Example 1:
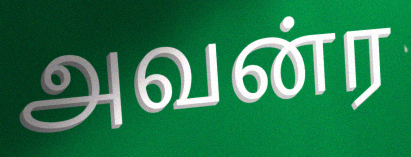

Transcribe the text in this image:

அவன்ர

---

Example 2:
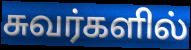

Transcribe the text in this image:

சுவர்களில்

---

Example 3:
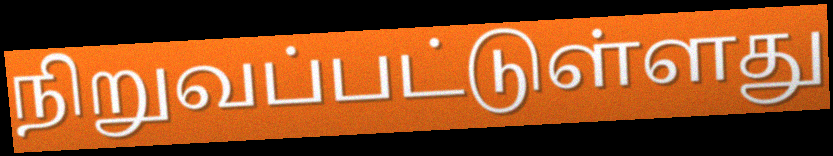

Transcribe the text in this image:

நிறுவப்பட்டுள்ளது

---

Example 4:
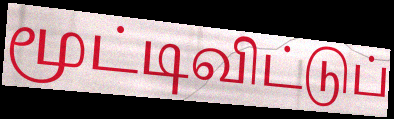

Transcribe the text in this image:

மூட்டிவிட்டுப்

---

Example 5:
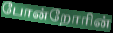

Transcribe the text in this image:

போன்றோரின்